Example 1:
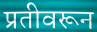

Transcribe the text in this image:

प्रतीवरून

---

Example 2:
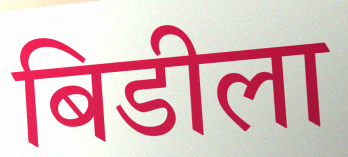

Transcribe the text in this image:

बिडीला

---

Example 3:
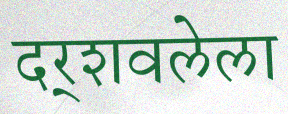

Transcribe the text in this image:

दर्शवलेला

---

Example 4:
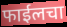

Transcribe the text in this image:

फाईलचा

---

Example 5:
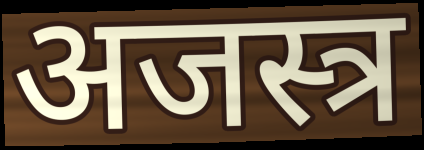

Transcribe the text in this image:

अजस्त्र